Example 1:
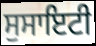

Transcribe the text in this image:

ਸੁਸਾਇਟੀ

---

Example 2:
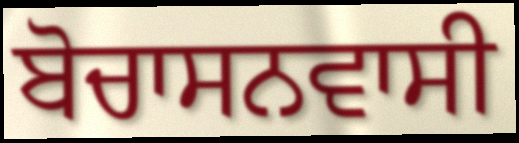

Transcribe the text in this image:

ਬੋਚਾਸਨਵਾਸੀ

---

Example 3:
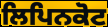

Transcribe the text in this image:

ਲਿਪਿਨਕੋਟ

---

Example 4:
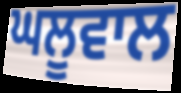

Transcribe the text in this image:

ਘਲੂਵਾਲ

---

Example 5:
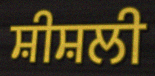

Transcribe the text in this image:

ਸ਼ੀਸ਼ਲੀ